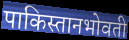
पाकिस्तानभोवती